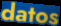
datos